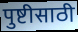
पुष्टीसाठी